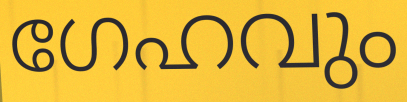
ഗേഹവും